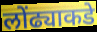
लोंढ्याकडे